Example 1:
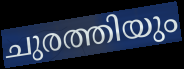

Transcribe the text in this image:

ചുരത്തിയും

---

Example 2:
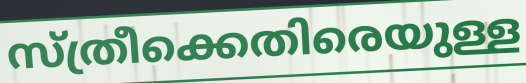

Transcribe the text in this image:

സ്ത്രീക്കെതിരെയുള്ള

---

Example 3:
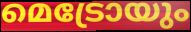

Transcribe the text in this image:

മെട്രോയും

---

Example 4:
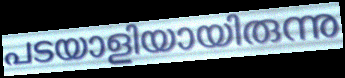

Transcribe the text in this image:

പടയാളിയായിരുന്നു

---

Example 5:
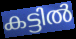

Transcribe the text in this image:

കട്ടിൽ